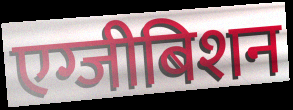
एग्जीबिशन